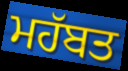
ਮਹੱਬਤ